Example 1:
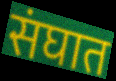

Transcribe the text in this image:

संघात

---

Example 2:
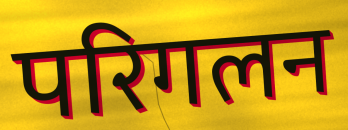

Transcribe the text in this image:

परिगलन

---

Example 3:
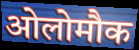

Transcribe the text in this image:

ओलोमौक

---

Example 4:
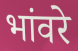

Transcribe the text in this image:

भांवरे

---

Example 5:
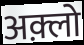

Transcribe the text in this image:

अक़्लो